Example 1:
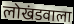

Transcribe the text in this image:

लोखंडवाला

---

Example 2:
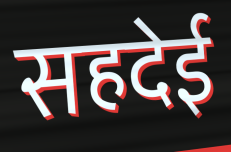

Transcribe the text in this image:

सहदेई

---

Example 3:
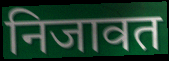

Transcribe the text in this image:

निजावत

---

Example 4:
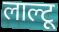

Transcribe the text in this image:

लाल्‍टू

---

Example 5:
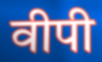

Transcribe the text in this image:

वीपी